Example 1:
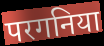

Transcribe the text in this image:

परगनिया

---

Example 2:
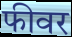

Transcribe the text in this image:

फीवर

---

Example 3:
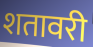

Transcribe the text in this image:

शतावरी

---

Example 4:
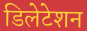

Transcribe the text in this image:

डिलेटेशन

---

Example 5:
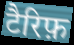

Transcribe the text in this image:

टैरिफ़